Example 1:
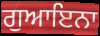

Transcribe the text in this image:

ਗੁਆਇਨਾ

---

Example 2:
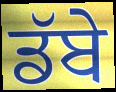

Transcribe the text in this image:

ਡੱਬੇ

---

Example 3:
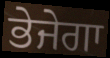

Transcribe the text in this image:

ਭੇਜੇਗਾ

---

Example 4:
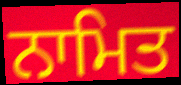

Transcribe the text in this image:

ਨਾਮਿਤ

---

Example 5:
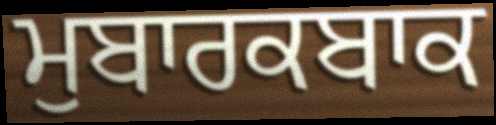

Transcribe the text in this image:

ਮੁਬਾਰਕਬਾਕ